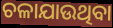
ଚଳାଯାଉଥିବା